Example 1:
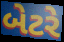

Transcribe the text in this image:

બેટરે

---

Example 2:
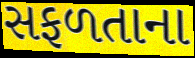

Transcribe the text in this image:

સફળતાના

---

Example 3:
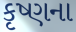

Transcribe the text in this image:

કૃષ્ણના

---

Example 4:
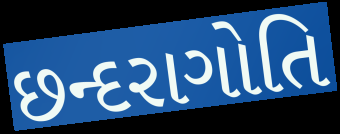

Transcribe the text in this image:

છન્દરાગોતિ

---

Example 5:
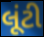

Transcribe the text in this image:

લૂંટી